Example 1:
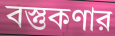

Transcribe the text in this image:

বস্তুকণার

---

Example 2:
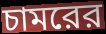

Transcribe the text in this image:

চামরের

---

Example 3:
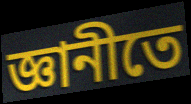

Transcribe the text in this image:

জ্ঞানীতে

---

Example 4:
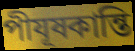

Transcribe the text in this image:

পীযূষকান্তি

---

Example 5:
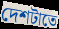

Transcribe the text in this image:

দেশটাতে